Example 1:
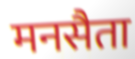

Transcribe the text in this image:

मनसैता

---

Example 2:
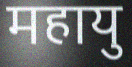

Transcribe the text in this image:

महायु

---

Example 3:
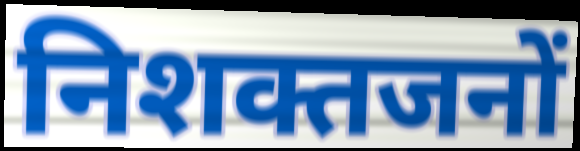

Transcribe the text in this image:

निशक्तजनों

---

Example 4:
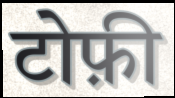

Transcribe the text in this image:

टोफ़ी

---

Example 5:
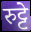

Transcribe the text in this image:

रुट्टे